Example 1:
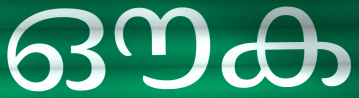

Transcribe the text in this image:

ഔക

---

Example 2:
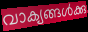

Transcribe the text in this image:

വാക്യങ്ങൾക്കു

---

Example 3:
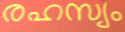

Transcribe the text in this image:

രഹസ്യം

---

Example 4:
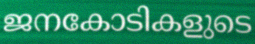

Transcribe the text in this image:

ജനകോടികളുടെ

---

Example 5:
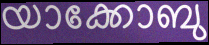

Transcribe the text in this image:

യാക്കോബു